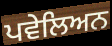
ਪਵੇਲਿਅਨ